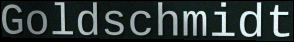
Goldschmidt